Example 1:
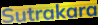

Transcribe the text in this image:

Sutrakara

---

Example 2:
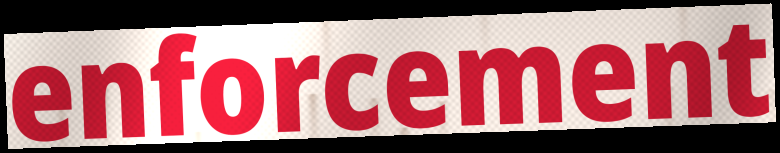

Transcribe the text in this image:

enforcement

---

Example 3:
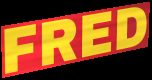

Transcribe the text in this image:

FRED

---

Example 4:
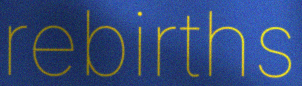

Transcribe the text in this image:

rebirths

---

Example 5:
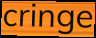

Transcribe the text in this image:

cringe